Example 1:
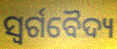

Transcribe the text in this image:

ସ୍ୱର୍ଗବୈଦ୍ୟ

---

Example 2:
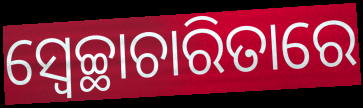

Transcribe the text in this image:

ସ୍ୱେଚ୍ଛାଚାରିତାରେ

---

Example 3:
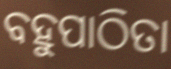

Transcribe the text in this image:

ବହୁପାଠିତା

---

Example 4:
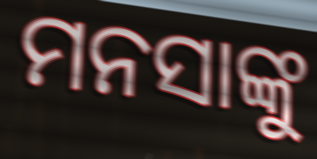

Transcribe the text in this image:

ମନସାଙ୍କୁ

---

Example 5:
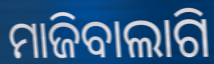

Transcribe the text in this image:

ମାଜିବାଲାଗି